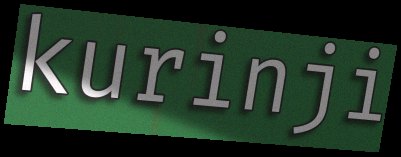
kurinji